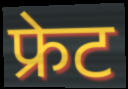
फ्रेट